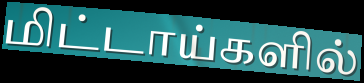
மிட்டாய்களில்